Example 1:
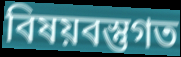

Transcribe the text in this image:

বিষয়বস্তুগত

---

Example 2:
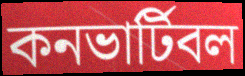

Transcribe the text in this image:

কনভার্টিবল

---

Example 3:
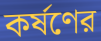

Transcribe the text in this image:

কর্ষণের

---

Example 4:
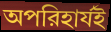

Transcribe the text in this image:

অপরিহার্যই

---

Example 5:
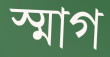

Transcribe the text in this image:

স্মাগ